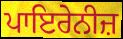
ਪਾਇਰੇਨੀਜ਼